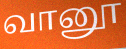
வானூ